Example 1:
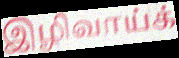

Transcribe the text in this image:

இழிவாய்க்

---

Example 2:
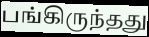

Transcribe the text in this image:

பங்கிருந்தது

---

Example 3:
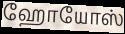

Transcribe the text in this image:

ஹோயோஸ்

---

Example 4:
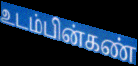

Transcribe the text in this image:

உடம்பின்கண்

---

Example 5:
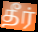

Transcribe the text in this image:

தீர்